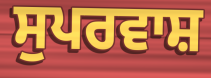
ਸੁਪਰਵਾਸ਼